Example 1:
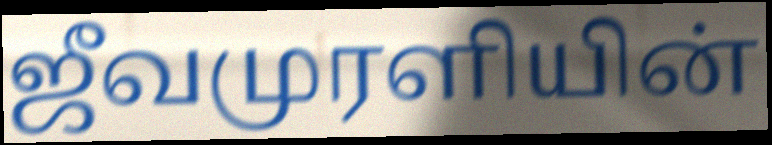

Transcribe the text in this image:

ஜீவமுரளியின்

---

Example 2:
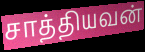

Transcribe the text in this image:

சாத்தியவன்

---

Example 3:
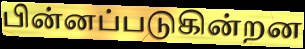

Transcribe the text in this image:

பின்னப்படுகின்றன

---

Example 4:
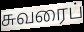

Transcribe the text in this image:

சுவரைப்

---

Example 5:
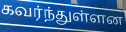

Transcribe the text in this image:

கவர்ந்துள்ளன